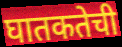
घातकतेची